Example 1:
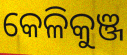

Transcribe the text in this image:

କେଳିକୁଞ୍ଜ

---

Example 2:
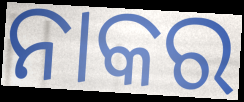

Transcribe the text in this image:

ନାକର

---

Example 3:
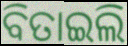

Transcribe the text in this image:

ବିତାଇଲି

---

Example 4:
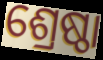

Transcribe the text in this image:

ଶ୍ରେଷ୍ଠା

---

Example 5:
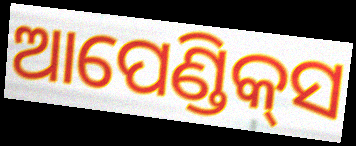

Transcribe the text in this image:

ଆପେଣ୍ଡିକ୍‌ସ